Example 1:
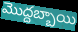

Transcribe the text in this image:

మొద్దబ్బాయి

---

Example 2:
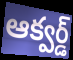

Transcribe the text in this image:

ఆక్వర్డ్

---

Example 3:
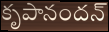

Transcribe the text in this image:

కృపానందన్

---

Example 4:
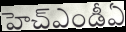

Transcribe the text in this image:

హెచ్ఎండీఏ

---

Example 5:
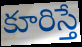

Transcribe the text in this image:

కూరిస్తే